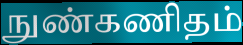
நுண்கணிதம்